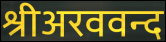
श्रीअरववन्द